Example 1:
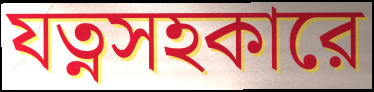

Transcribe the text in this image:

যত্নসহকারে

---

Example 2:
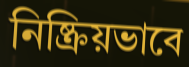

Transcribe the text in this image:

নিষ্ক্রিয়ভাবে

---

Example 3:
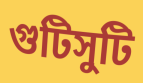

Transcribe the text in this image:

গুটিসুটি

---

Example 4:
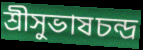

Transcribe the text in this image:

শ্রীসুভাষচন্দ্র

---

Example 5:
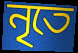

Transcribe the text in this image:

নৃতে